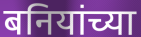
बनियांच्या